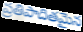
ప్రతిపాదితమైన